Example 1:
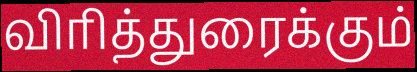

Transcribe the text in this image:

விரித்துரைக்கும்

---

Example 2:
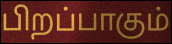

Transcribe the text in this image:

பிறப்பாகும்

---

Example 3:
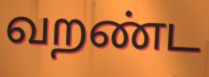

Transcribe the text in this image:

வறண்ட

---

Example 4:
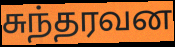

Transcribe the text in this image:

சுந்தரவன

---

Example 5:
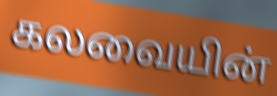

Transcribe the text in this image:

கலவையின்